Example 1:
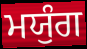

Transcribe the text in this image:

ਮਯੁੰਗ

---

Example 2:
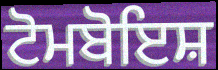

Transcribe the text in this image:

ਟੋਮਬੋਇਸ਼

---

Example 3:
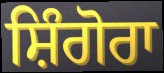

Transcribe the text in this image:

ਸ਼ਿੰਗੋਰਾ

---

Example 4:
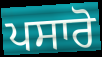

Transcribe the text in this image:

ਪਸਾਰੋ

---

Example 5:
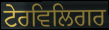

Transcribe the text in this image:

ਟੇਰਵਿਲਿਗਰ